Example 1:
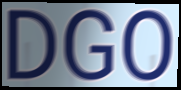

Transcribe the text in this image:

DGO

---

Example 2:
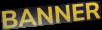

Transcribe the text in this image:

BANNER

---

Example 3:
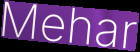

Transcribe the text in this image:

Mehar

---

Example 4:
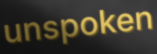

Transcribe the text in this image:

unspoken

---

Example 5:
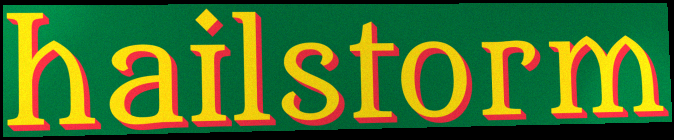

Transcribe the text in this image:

hailstorm